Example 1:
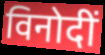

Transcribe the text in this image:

विनोदीं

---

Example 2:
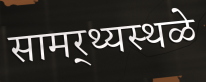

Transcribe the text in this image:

सामर्थ्यस्थळे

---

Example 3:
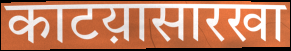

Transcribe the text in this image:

काटय़ासारखा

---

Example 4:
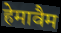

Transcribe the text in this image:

हेमावैम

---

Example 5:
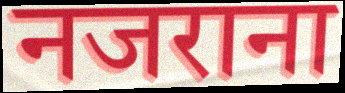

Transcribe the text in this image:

नजराना